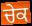
ਚੇਕ